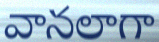
వానలాగా